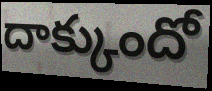
దాక్కుందో